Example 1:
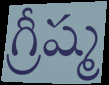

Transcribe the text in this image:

గ్రీష్మ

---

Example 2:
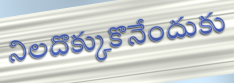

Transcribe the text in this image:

నిలదొక్కుకొనేందుకు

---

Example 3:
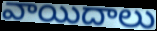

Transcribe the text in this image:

వాయిదాలు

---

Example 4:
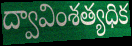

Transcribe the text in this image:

ద్వావింశత్యధిక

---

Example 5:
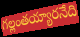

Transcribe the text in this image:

గల్లంతయ్యారనేది